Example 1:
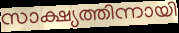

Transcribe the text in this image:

സാക്ഷ്യത്തിന്നായി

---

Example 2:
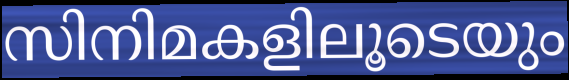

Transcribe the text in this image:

സിനിമകളിലൂടെയും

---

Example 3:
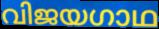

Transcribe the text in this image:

വിജയഗാഥ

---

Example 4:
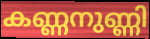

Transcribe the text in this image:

കണ്ണനുണ്ണി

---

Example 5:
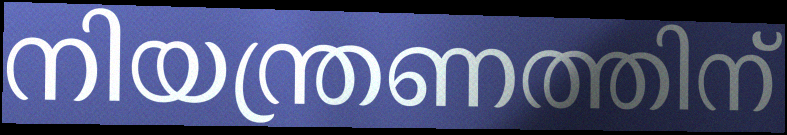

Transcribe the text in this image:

നിയന്ത്രണത്തിന്